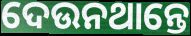
ଦେଉନଥାନ୍ତେ